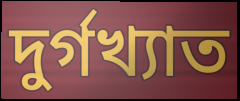
দুর্গখ্যাত